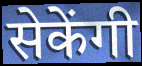
सेकेंगी